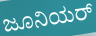
ಜೂನಿಯರ್